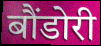
बौंडोरी